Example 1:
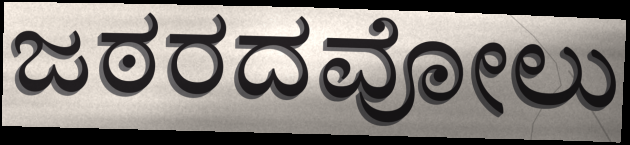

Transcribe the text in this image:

ಜಠರದವೋಲು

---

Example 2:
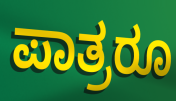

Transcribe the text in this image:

ಪಾತ್ರರೂ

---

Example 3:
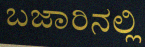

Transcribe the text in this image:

ಬಜಾರಿನಲ್ಲಿ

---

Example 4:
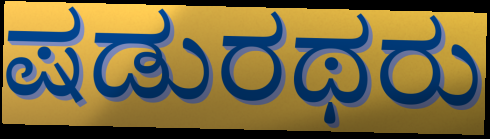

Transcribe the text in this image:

ಷಡುರಥರು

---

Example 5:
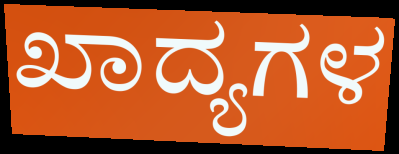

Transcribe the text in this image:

ಖಾದ್ಯಗಳ